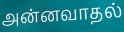
அன்னவாதல்